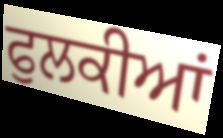
ਫੁਲਕੀਆਂ